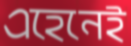
এহেনেই